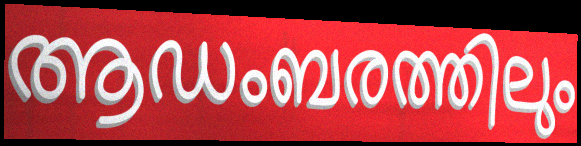
ആഡംബരത്തിലും